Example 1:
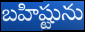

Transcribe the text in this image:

బహిష్టును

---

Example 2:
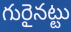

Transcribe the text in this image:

గురైనట్టు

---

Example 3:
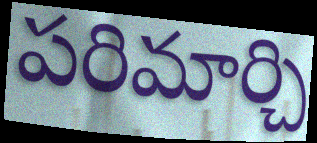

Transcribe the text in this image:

పరిమార్చి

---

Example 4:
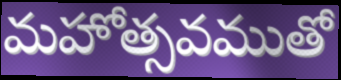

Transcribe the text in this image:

మహోత్సవముతో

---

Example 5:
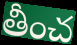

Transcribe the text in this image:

తీంచ